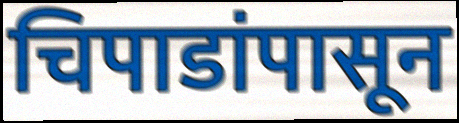
चिपाडांपासून